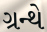
ગ્રન્થે